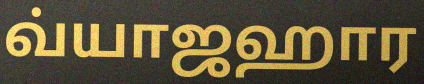
வ்யாஜஹார